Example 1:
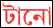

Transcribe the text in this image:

টানো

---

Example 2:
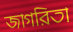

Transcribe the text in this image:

জাগরিতা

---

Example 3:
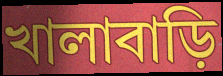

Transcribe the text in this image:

খালাবাড়ি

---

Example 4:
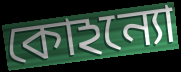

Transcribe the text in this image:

কোঽন্যো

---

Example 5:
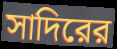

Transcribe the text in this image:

সাদিরের